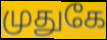
முதுகே